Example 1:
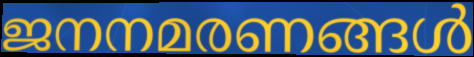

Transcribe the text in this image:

ജനനമരണങ്ങൾ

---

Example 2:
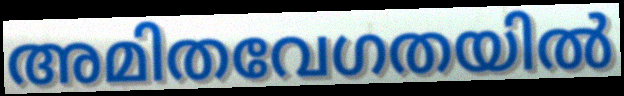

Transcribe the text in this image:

അമിതവേഗതയിൽ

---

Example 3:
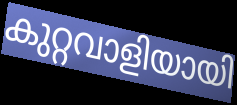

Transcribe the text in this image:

കുറ്റവാളിയായി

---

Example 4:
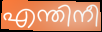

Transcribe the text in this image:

എന്തിനീ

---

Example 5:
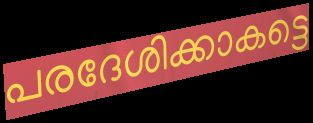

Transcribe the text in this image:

പരദേശിക്കാകട്ടെ